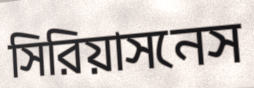
সিরিয়াসনেস